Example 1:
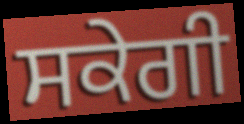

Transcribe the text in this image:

ਸਕੇਗੀ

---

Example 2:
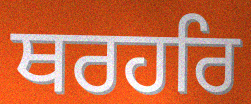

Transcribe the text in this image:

ਥਰਹਰਿ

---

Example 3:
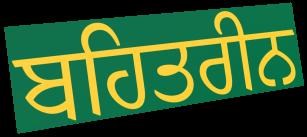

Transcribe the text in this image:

ਬਹਿਤਰੀਨ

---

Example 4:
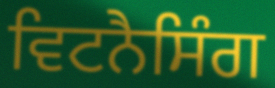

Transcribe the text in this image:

ਵਿਟਨੈਸਿੰਗ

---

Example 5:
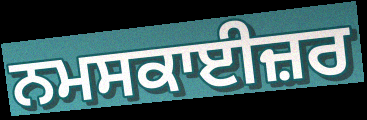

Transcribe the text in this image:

ਨਮਸਕਾਈਜ਼ਰ